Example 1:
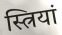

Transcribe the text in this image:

स्त्रियां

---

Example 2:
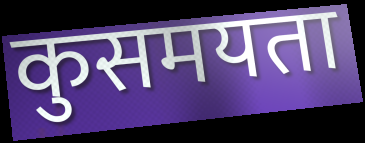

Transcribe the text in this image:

कुसमयता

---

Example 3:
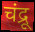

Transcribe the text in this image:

चंद्रू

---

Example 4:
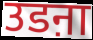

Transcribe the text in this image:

उडऩा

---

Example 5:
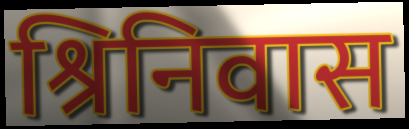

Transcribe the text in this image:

श्रिनिवास